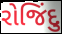
રોજિંદુ